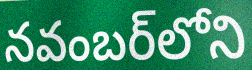
నవంబర్‌లోని